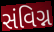
સંવિગ્ન